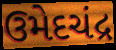
ઉમેદચંદ્ર